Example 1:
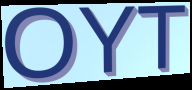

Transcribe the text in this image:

OYT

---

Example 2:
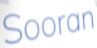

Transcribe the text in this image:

Sooran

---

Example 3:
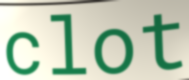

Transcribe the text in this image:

clot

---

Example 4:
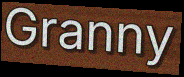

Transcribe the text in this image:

Granny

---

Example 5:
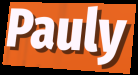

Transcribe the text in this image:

Pauly